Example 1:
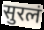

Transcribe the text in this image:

सुरलं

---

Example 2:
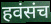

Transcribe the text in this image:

हवंसंच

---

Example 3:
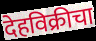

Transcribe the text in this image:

देहविक्रीचा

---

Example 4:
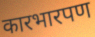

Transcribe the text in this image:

कारभारपण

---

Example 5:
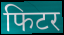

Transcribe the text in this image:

फिटर